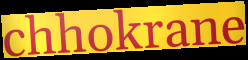
chhokrane